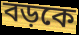
বড়কে